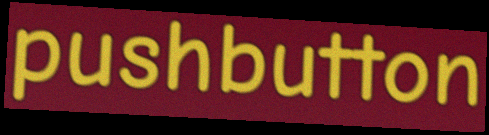
pushbutton